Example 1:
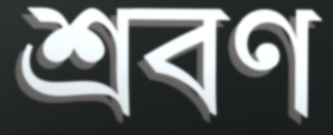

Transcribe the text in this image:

শ্রবণ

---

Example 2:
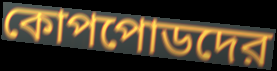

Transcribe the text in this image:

কোপপোডদের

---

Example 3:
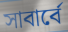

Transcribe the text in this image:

সাবার্বে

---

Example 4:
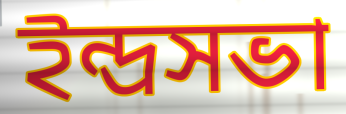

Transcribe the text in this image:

ইন্দ্রসভা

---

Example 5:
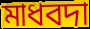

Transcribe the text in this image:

মাধবদা